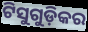
ଟିସୁଗୁଡ଼ିକର